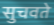
सुचवते